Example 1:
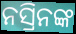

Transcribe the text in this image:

ନସ୍ରିନଙ୍କ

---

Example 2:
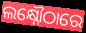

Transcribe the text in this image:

ଲକ୍ଷ୍ନୌଠାରେ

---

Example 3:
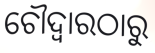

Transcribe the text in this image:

ଚୌଦ୍ୱାରଠାରୁ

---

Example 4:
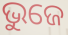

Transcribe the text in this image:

ଭୁଜେ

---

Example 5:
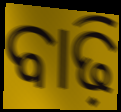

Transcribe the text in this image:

ବାଢ଼ି